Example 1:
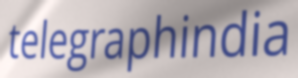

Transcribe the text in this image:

telegraphindia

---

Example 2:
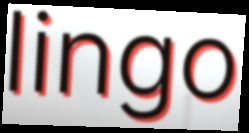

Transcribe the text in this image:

lingo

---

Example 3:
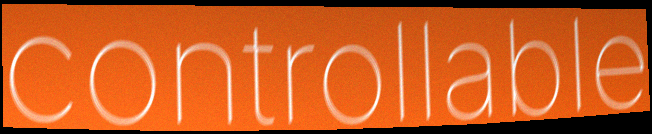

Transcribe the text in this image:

controllable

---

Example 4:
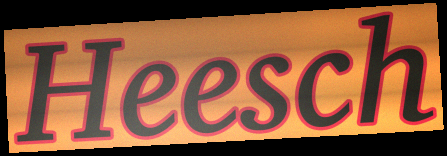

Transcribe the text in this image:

Heesch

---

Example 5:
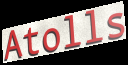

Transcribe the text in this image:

Atolls